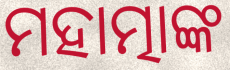
ମହାତ୍ମାଙ୍କ